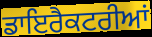
ਡਾਇਰੈਕਟਰੀਆਂ